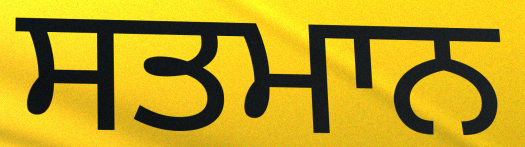
ਸਤਮਾਨ